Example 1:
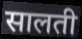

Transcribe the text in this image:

सालती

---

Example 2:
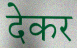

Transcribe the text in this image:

देकर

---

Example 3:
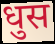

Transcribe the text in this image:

धुस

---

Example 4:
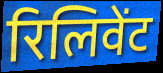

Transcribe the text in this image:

रिलिवेंट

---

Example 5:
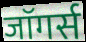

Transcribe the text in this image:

जॉगर्स